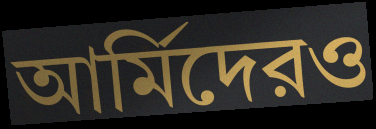
আর্মিদেরও